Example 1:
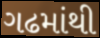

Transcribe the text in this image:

ગઢમાંથી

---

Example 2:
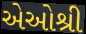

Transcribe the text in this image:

એઓશ્રી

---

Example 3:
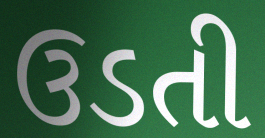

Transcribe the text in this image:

ઉડતી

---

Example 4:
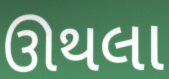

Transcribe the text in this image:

ઊથલા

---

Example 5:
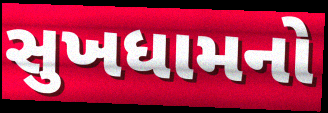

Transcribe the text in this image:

સુખધામનો